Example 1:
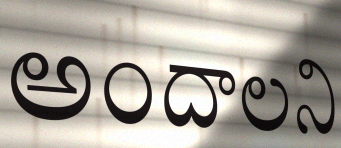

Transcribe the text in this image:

అందాలని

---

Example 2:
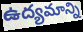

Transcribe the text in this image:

ఉద్యమాన్ని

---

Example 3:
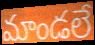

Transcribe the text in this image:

మాండలే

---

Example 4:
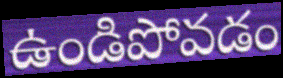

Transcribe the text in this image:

ఉండిపోవడం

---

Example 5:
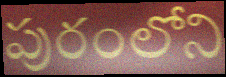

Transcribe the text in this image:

పురంలోని